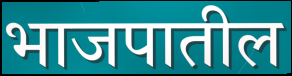
भाजपातील